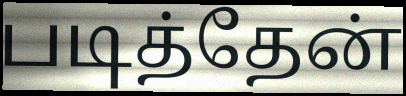
படித்தேன்